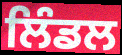
ਲਿੰਡਲ